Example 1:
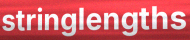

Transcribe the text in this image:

stringlengths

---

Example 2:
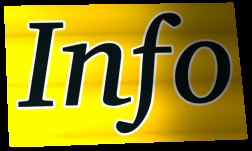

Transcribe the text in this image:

Info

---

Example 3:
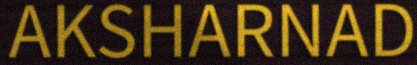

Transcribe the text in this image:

AKSHARNAD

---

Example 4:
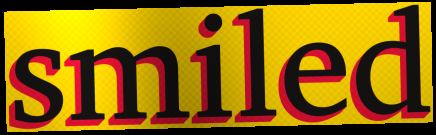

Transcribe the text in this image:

smiled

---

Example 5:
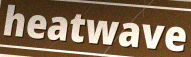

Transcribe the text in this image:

heatwave